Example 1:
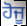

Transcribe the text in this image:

ਹੋਜੂ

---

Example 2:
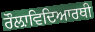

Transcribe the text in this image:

ਰੌਲ਼ਾਵਿਦਿਆਰਥੀ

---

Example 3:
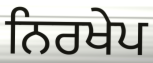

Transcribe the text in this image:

ਨਿਰਖੇਪ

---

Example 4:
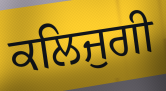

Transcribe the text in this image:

ਕਲਿਜੁਗੀ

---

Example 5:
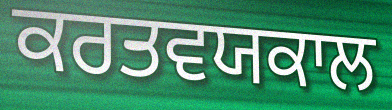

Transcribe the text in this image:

ਕਰਤਵਯਕਾਲ